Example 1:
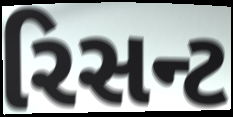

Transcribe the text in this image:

રિસન્ટ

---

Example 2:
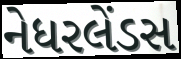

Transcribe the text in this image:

નેધરલેંડસ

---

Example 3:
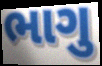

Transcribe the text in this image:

ભાગુ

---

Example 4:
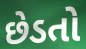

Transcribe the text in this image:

છેડતો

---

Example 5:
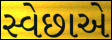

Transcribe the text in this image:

સ્વેછાએ